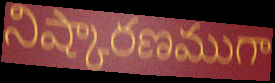
నిష్కారణముగా